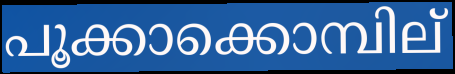
പൂക്കാക്കൊമ്പില്